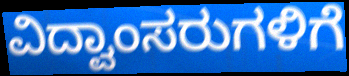
ವಿದ್ವಾಂಸರುಗಳಿಗೆ